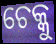
ଚେକ୍କୁ